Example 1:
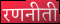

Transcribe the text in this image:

रणनीती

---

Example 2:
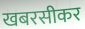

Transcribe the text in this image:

खबरसीकर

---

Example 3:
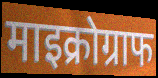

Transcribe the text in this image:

माइक्रोग्राफ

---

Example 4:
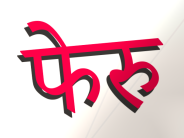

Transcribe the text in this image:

फेरु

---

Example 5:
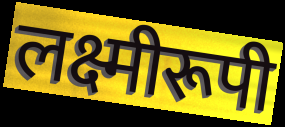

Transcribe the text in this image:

लक्ष्मीरूपी